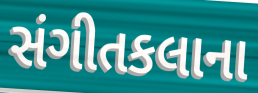
સંગીતકલાના